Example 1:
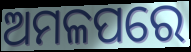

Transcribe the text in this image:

ଅମଳପରେ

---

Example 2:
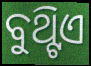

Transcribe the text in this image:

ବୁଥ୍ଟିଏ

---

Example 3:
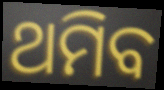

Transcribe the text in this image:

ଥମିବ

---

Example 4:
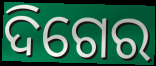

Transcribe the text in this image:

ଦିଗେର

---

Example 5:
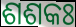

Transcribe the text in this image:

ଶଶକଃ